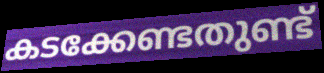
കടക്കേണ്ടതുണ്ട്